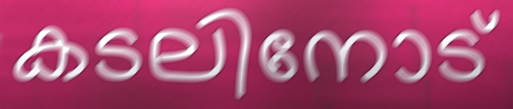
കടലിനോട്